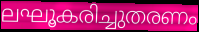
ലഘൂകരിച്ചുതരണം